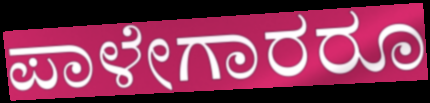
ಪಾಳೇಗಾರರೂ